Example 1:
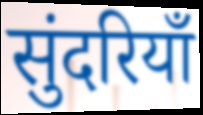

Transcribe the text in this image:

सुंदरियाँ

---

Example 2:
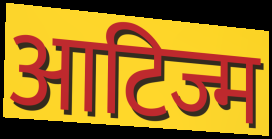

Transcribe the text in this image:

आटिज्म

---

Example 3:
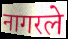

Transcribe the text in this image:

नागरले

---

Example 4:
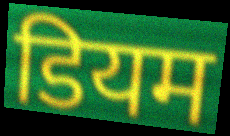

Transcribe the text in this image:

डियम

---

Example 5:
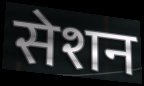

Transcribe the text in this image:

सेशन